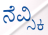
ನೆವ್ಸ್ಕಿ